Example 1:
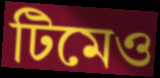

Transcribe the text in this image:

টিমেও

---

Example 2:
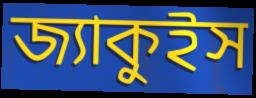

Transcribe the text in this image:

জ্যাকুইস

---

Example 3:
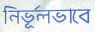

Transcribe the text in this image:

নির্ভূলভাবে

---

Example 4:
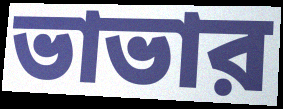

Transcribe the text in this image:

ভাভার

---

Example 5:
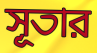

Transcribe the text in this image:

সূতার